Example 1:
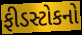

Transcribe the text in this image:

ફીડસ્ટોકનો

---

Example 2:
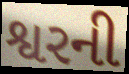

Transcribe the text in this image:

શ્વરની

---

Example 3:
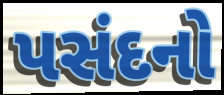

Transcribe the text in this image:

પસંદનો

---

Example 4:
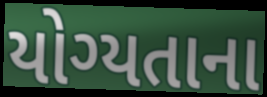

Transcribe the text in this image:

યોગ્યતાના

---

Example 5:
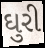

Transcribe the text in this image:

ઘુરી